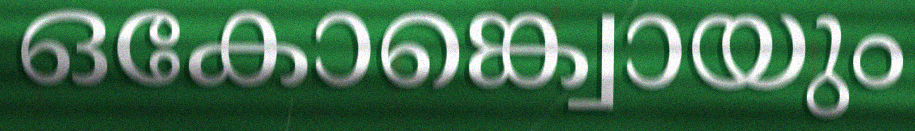
ഒകോങ്ക്വൊയും